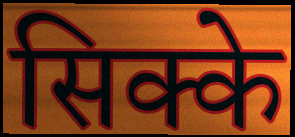
सिक्के